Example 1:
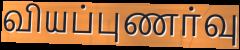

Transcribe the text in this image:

வியப்புணர்வு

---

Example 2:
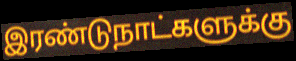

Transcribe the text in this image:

இரண்டுநாட்களுக்கு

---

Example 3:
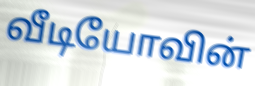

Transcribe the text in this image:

வீடியோவின்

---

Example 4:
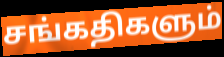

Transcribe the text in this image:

சங்கதிகளும்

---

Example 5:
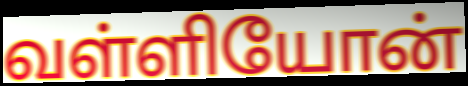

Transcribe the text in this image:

வள்ளியோன்